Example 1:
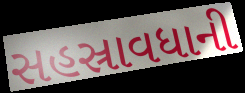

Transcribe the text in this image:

સહસ્રાવધાની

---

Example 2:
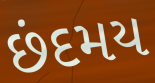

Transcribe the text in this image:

છંદમય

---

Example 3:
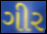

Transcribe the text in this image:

ગીર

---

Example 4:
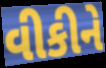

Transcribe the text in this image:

વીકીને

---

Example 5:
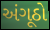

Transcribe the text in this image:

અંગૂઠો